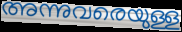
അന്നുവരെയുള്ള